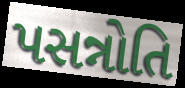
પસન્નોતિ